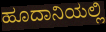
ಹೂದಾನಿಯಲ್ಲಿ